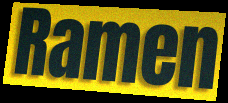
Ramen